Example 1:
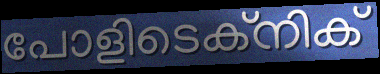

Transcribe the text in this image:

പോളിടെക്നിക്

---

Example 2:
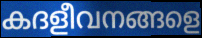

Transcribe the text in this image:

കദളീവനങ്ങളെ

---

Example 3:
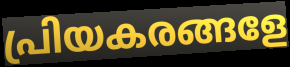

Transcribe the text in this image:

പ്രിയകരങ്ങളേ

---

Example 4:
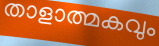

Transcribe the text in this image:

താളാത്മകവും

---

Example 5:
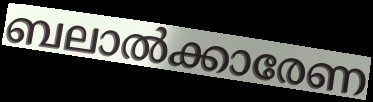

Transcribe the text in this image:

ബലാൽക്കാരേണ